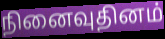
நினைவுதினம்